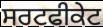
ਸਰਟਫੀਕੇਟ